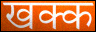
खक्क